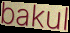
bakul